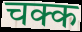
चक्‍क